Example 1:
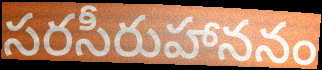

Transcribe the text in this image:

సరసీరుహాననం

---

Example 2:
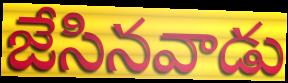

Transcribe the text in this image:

జేసినవాడు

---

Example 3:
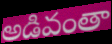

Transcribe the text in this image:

అడివంతా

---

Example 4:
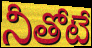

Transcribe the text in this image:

నీతోటే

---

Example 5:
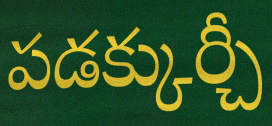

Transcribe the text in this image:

పడక్కుర్చీ